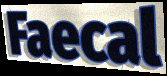
Faecal